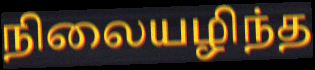
நிலையழிந்த